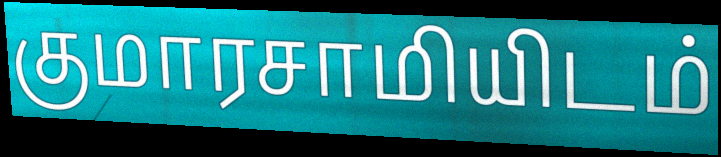
குமாரசாமியிடம்